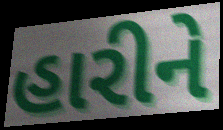
હારીને